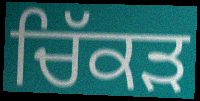
ਚਿੱਕੜ